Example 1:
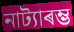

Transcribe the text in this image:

নাট্যাৰম্ভ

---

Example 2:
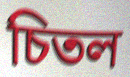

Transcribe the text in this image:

চিতল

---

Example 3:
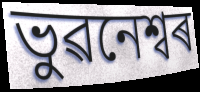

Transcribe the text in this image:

ভুৱনেশ্বৰ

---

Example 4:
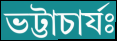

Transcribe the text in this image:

ভট্টাচাৰ্যঃ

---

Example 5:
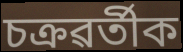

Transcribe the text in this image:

চক্ৰৱৰ্তীক